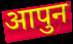
आपुन